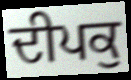
ਦੀਪਕੁ